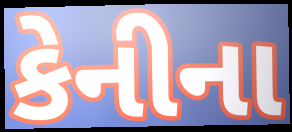
કેનીના